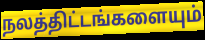
நலத்திட்டங்களையும்